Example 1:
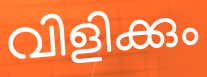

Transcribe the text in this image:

വിളിക്കും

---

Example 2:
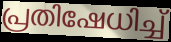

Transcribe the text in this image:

പ്രതിഷേധിച്ച്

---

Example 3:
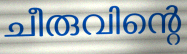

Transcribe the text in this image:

ചീരുവിന്റെ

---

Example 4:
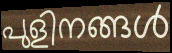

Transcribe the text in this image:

പുളിനങ്ങൾ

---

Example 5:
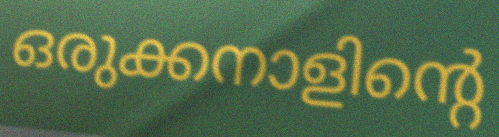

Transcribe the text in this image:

ഒരുക്കനാളിന്റെ